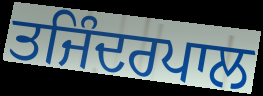
ਤਜਿੰਦਰਪਾਲ